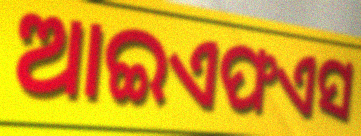
ଆଇଏଫଏସ